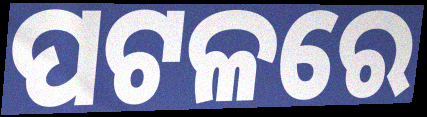
ପଟଳରେ